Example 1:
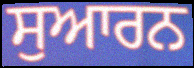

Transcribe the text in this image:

ਸੁਆਰਨ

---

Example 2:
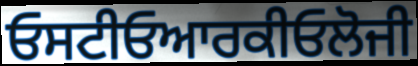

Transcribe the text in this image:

ਓਸਟੀਓਆਰਕੀਓਲੋਜੀ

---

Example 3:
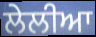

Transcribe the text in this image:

ਲੇਲੀਆ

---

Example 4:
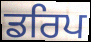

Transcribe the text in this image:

ਡਰਿਪ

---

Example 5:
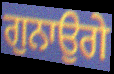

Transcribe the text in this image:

ਗੁਨਾਉਗੇ